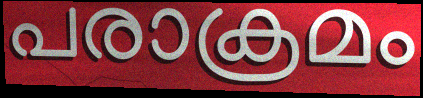
പരാക്രമം